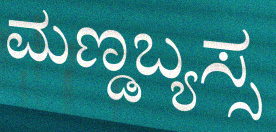
ಮಣ್ಡಬ್ಯಸ್ಸ